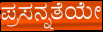
ಪ್ರಸನ್ನತೆಯೇ